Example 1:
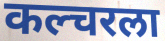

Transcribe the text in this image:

कल्चरला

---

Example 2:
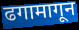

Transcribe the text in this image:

ढगामागून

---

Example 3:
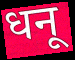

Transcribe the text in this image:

धनू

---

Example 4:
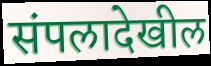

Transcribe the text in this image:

संपलादेखील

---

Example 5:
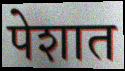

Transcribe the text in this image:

पेशात